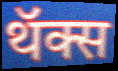
थॅक्स